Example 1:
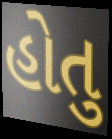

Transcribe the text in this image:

હોતુ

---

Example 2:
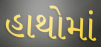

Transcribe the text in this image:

હાથોમાં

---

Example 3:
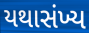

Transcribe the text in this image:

યથાસંખ્ય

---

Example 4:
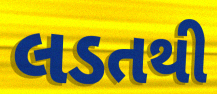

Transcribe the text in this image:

લડતથી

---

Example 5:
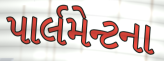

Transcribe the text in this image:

પાર્લમેન્ટના